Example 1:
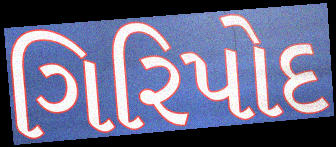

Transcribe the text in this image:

ગિરિપોદ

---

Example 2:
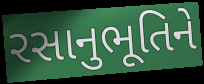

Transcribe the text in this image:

રસાનુભૂતિને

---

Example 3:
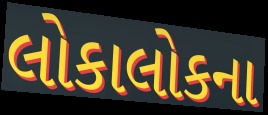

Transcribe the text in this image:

લોકાલોકના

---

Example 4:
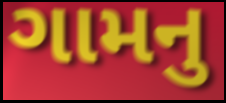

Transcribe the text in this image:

ગામનુ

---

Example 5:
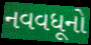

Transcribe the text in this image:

નવવધૂનો